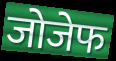
जोजेफ